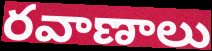
రవాణాలు